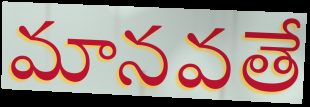
మానవతే